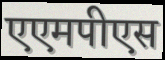
एएमपीएस